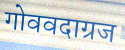
गोववदाग्रज